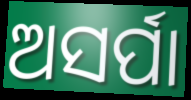
ଅସର୍ପା